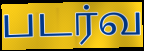
படர்வ